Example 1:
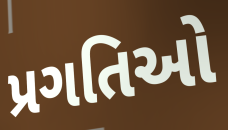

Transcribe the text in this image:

પ્રગતિઓ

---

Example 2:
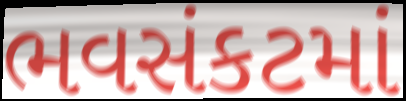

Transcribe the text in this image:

ભવસંકટમાં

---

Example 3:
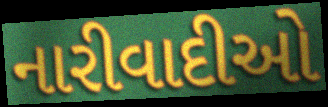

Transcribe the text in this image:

નારીવાદીઓ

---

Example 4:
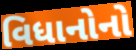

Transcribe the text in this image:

વિધાનોનો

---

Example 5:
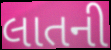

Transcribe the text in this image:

લાતની